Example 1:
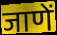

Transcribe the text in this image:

जाणें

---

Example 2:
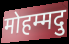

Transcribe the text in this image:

मोहम्मदु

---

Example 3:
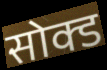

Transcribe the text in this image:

सोक्ड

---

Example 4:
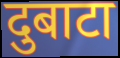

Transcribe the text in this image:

दुबाटा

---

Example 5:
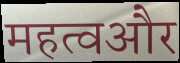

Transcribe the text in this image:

महत्वऔर